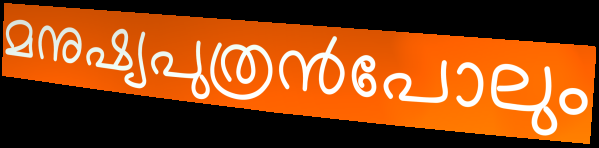
മനുഷ്യപുത്രൻപോലും